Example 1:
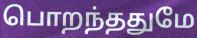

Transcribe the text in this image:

பொறந்ததுமே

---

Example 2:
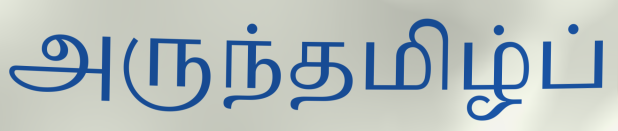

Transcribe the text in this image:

அருந்தமிழ்ப்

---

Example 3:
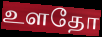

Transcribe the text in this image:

உளதோ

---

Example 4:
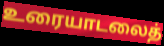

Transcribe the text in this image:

உரையாடலைத்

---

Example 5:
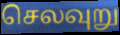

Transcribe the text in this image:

செலவுறு